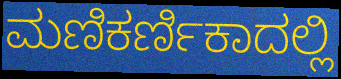
ಮಣಿಕರ್ಣಿಕಾದಲ್ಲಿ